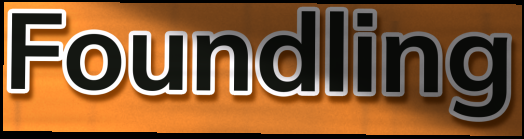
Foundling